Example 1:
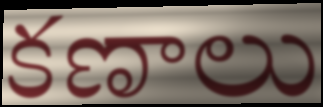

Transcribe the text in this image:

కణాలు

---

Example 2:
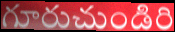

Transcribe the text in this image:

గూరుచుండిరి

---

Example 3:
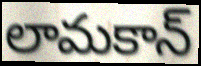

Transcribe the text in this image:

లామకాన్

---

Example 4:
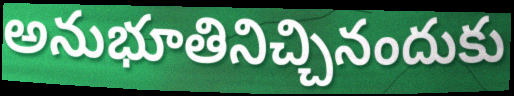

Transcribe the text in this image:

అనుభూతినిచ్చినందుకు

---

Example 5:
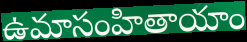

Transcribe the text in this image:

ఉమాసంహితాయాం